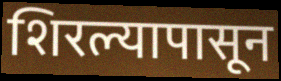
शिरल्यापासून